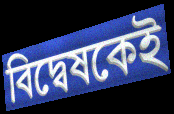
বিদ্বেষকেই